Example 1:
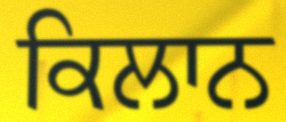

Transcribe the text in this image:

ਕਿਲਾਨ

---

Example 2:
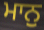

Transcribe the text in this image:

ਮਾਨੁ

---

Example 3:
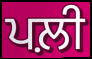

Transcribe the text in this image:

ਪਲ਼ੀ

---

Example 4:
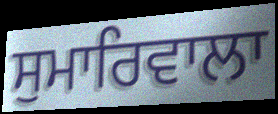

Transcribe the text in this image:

ਸੁਮਾਰਿਵਾਲਾ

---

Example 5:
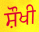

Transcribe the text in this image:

ਸ਼ੌਖੀ